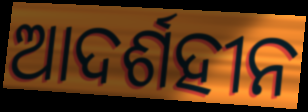
ଆଦର୍ଶହୀନ